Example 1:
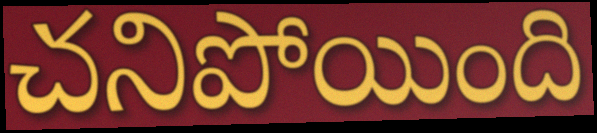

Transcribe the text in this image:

చనిపోయింది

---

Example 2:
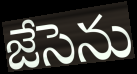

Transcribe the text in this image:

జేసెను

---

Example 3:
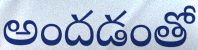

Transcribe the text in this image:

అందడంతో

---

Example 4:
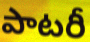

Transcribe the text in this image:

పాటరీ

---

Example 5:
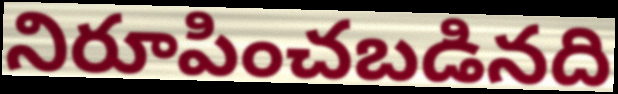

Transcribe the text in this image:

నిరూపించబడినది